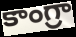
కాంగ్రా